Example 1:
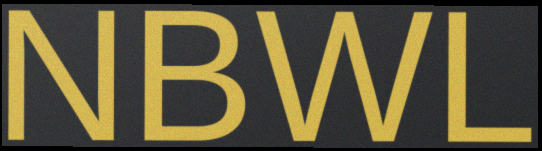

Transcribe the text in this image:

NBWL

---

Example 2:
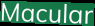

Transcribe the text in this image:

Macular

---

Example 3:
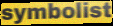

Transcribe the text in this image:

symbolist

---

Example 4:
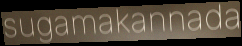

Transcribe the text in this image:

sugamakannada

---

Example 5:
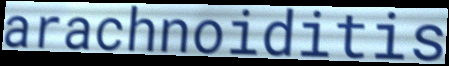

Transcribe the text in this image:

arachnoiditis